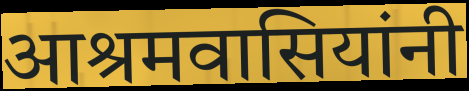
आश्रमवासियांनी